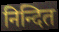
निन्दित